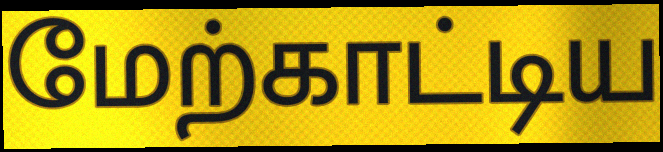
மேற்காட்டிய